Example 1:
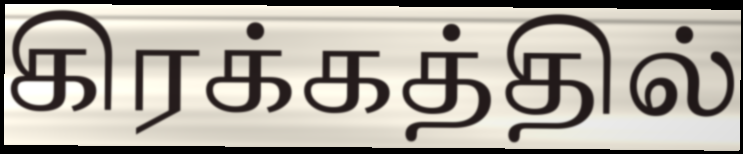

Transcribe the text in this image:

கிரக்கத்தில்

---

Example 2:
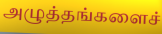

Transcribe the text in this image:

அழுத்தங்களைச்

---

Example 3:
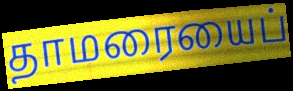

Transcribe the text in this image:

தாமரையைப்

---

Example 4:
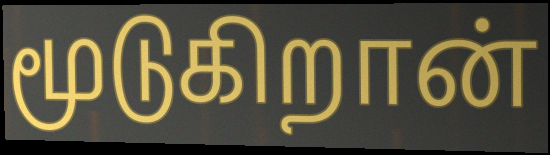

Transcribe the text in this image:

மூடுகிறான்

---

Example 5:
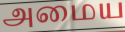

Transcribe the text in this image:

அமைய